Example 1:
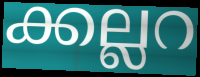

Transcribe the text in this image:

ക്കല്ലറ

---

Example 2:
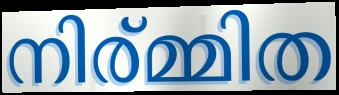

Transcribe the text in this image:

നിര്മ്മിത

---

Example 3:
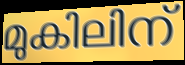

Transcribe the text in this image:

മുകിലിന്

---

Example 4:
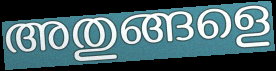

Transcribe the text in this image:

അതുങ്ങളെ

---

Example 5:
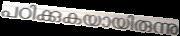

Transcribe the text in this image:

പഠിക്കുകയായിരുന്നു